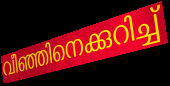
വീഞ്ഞിനെക്കുറിച്ച്